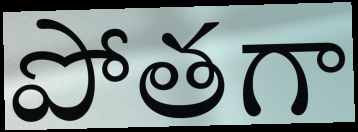
పోతగా